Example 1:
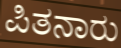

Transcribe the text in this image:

ಪಿತನಾರು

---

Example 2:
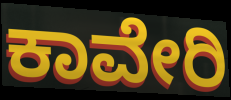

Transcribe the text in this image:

ಕಾವೇರಿ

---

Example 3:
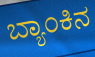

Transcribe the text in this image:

ಬ್ಯಾಂಕಿನ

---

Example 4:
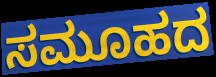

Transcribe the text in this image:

ಸಮೂಹದ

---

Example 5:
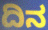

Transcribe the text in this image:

ದಿನ